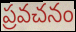
ప్రవచనం